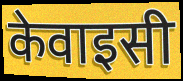
केवाइसी